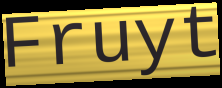
Fruyt